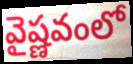
వైష్ణవంలో